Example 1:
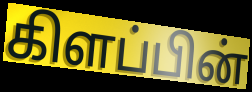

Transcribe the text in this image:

கிளப்பின்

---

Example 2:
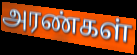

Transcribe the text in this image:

அரண்கள்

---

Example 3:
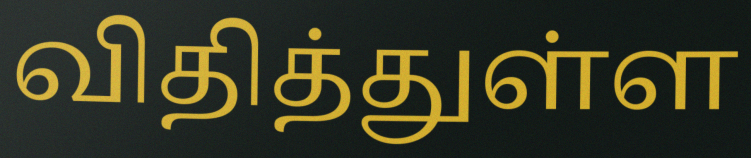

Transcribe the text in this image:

விதித்துள்ள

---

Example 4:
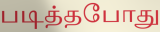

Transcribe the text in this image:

படித்தபோது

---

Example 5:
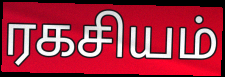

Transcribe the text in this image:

ரகசியம்